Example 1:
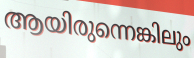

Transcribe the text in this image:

ആയിരുന്നെങ്കിലും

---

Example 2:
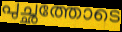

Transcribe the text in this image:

പുച്ഛത്തോടെ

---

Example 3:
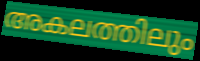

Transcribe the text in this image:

അകലത്തിലും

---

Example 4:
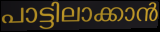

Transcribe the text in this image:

പാട്ടിലാക്കാൻ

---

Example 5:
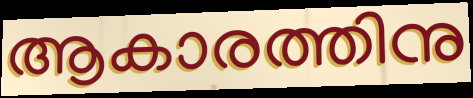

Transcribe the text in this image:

ആകാരത്തിനു